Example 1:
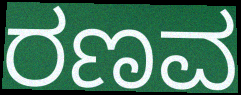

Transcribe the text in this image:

ರಣವ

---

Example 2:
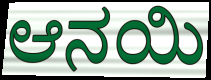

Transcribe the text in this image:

ಆನಯಿ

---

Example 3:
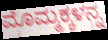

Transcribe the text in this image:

ಮೊಮ್ಮಕ್ಕಳನ್ನ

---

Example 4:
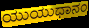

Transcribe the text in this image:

ಯುಯುಧಾನಂ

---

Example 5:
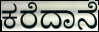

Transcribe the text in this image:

ಕರೆದಾನೆ